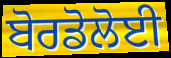
ਬੋਰਡੋਲੋਈ